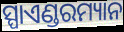
ସ୍ପାଏଣ୍ଡରମ୍ୟାନ